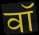
वॉ